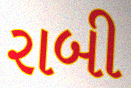
રાબી